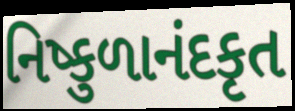
નિષ્કુળાનંદકૃત